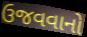
ઉજવવાનો